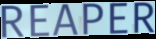
REAPER